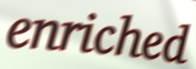
enriched